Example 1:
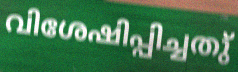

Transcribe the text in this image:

വിശേഷിപ്പിച്ചതു്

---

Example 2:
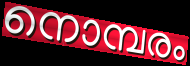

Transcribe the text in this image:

നൊമ്പരം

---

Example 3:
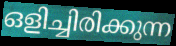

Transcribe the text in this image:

ഒളിച്ചിരിക്കുന്ന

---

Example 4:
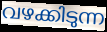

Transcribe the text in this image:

വഴക്കിടുന്ന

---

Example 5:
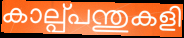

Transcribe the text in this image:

കാല്പ്പന്തുകളി